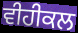
ਵੀਹੀਕਲ